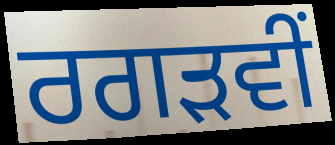
ਰਗੜਵੀਂ